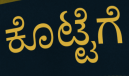
ಕೊಟ್ಟೆಗೆ